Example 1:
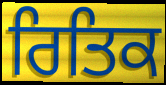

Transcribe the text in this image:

ਰਿਤਿਕ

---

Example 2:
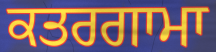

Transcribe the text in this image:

ਕਤਰਗਾਮਾ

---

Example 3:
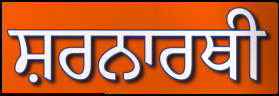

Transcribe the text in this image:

ਸ਼ਰਨਾਰਥੀ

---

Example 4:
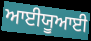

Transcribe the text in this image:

ਆਈਯੂਆਈ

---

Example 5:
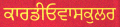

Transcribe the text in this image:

ਕਾਰਡੀਓਵਾਸਕੁਲਰ